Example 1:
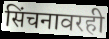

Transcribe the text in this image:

सिंचनावरही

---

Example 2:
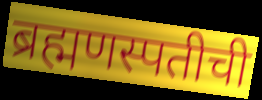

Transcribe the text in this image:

ब्रह्मणस्पतीची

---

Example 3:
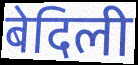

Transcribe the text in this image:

बेदिली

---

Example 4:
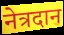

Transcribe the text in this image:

नेत्रदान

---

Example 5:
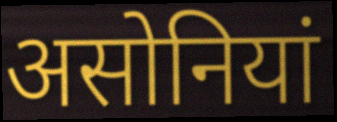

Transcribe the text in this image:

असोनियां